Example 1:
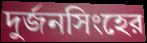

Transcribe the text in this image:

দুর্জনসিংহের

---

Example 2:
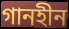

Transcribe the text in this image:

গানহীন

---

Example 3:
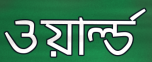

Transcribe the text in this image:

ওয়ার্ল্ড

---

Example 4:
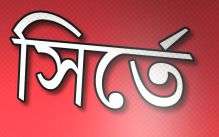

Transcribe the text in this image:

সির্তে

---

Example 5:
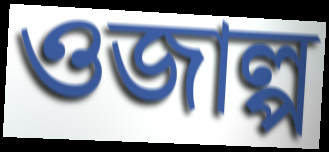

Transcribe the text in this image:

ওজাল্প